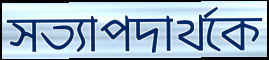
সত্যাপদার্থকে